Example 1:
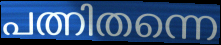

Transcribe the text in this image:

പത്നിതന്നെ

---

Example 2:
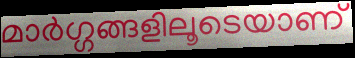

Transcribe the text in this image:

മാർഗ്ഗങ്ങളിലൂടെയാണ്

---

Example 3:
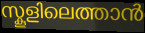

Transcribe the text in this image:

സ്കൂളിലെത്താൻ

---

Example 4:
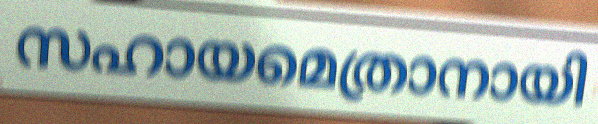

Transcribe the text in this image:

സഹായമെത്രാനായി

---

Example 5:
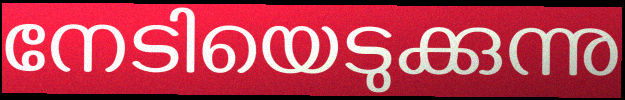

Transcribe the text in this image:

നേടിയെടുക്കുന്നു